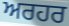
ਅਰਹਰ